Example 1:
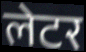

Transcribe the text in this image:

लेटर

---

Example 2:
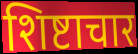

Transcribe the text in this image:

शिष्टाचार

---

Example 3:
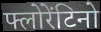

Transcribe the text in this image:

फ्लोरेंटिनो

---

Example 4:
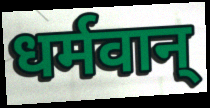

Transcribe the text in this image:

धर्मवान्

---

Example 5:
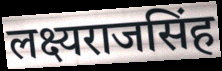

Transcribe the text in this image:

लक्ष्यराजसिंह